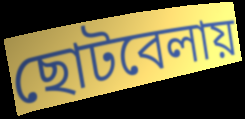
ছোটবেলায়